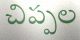
చిప్పల